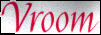
Vroom